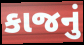
કાજનું